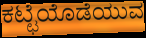
ಕಟ್ಟೆಯೊಡೆಯುವ